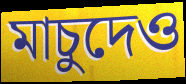
মাচুদেও